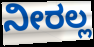
ನೀರಲ್ಲ